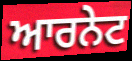
ਆਰਨੇਟ